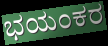
ಭಯಂಕರ